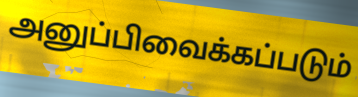
அனுப்பிவைக்கப்படும்